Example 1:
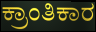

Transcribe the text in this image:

ಕ್ರಾಂತಿಕಾರ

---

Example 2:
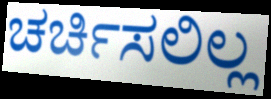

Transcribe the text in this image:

ಚರ್ಚಿಸಲಿಲ್ಲ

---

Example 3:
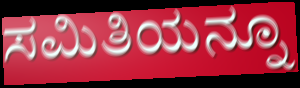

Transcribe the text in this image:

ಸಮಿತಿಯನ್ನೂ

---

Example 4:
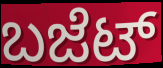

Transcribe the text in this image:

ಬಜೆಟ್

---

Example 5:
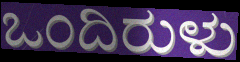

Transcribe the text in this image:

ಒಂದಿರುಳು